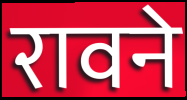
रावने